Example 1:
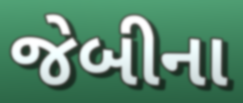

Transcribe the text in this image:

જેબીના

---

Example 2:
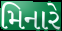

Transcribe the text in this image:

મિનારે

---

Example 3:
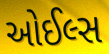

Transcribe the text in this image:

ઓઈલ્સ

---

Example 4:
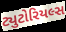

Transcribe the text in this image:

ટ્યુટોરિયલ્સ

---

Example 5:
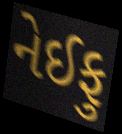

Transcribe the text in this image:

નેઈફુ